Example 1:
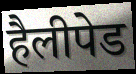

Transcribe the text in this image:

हैलीपेड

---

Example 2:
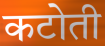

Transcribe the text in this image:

कटोती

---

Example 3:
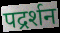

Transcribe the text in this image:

पद्रर्शन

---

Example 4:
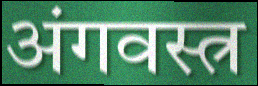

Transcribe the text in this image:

अंगवस्त्र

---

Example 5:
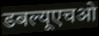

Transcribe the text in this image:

डबल्यूएचओ